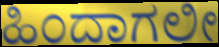
ಹಿಂದಾಗಲೀ